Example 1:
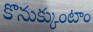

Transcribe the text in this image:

కొనుక్కుంటాం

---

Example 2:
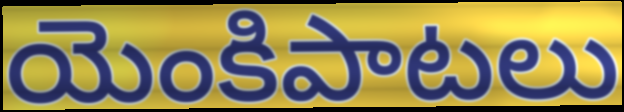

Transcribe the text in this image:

యెంకిపాటలు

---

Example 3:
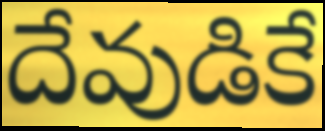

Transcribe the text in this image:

దేవుడికే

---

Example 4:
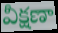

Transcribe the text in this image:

వీక్షణా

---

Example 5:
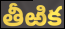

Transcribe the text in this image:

తీఱిక